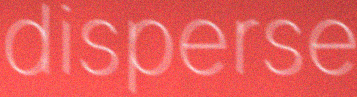
disperse